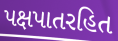
પક્ષપાતરહિત